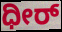
ಧೀರ್